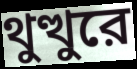
থুত্থুরে